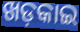
ଖଡ଼କାଇ